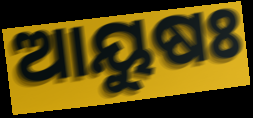
ଆୟୁଷଃ